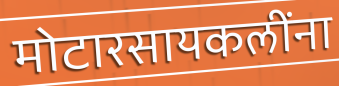
मोटारसायकलींना